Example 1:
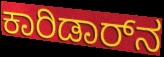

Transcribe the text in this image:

ಕಾರಿಡಾರ್‌ನ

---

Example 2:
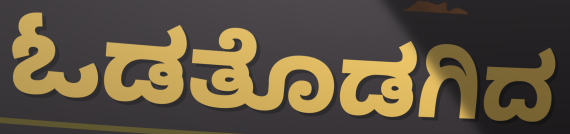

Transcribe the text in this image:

ಓಡತೊಡಗಿದ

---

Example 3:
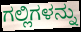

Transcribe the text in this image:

ಗಲ್ಲಿಗಳನ್ನು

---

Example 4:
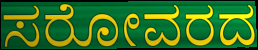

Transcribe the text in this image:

ಸರೋವರದ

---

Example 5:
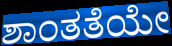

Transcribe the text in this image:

ಶಾಂತತೆಯೇ